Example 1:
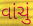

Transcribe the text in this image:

વાંચું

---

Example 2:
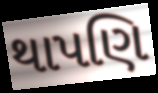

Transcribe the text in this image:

થાપણિ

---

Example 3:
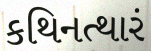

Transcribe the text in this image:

કથિનત્થારં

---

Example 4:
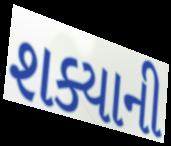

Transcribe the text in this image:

શક્યાની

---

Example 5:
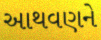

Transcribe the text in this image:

આથવણને